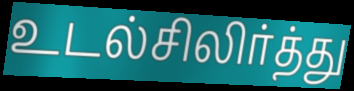
உடல்சிலிர்த்து